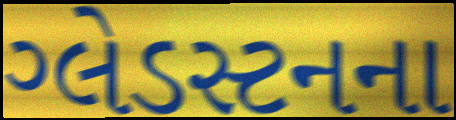
ગ્લેડસ્ટનના